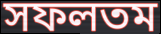
সফলতম